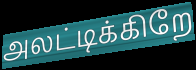
அலட்டிக்கிறே